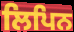
ਲਿਪਿਨ